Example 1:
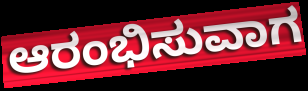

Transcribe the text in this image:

ಆರಂಭಿಸುವಾಗ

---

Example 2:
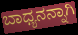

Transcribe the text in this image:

ಬಾಧ್ಯನನ್ನಾಗಿ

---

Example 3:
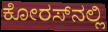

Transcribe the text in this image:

ಕೋರಸ್‌ನಲ್ಲಿ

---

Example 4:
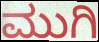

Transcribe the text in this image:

ಮುಗಿ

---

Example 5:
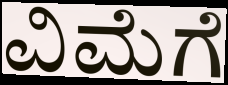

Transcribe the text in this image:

ವಿಮೆಗೆ